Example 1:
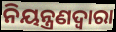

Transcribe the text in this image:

ନିୟନ୍ତ୍ରଣଦ୍ବାରା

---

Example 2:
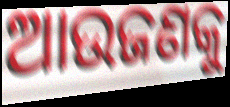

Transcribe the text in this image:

ଆଉଜଣକୁ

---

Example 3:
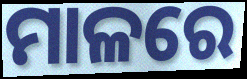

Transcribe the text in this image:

ମାଳରେ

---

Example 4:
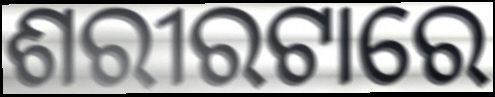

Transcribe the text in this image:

ଶରୀରଟାରେ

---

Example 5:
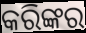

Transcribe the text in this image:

କରିଙ୍କର